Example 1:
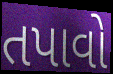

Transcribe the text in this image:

તપાવો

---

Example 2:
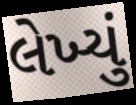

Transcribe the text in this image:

લેખ્યું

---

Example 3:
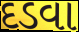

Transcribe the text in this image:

દડવા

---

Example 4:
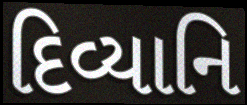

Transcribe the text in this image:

દિવ્યાનિ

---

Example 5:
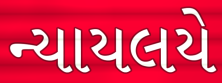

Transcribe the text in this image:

ન્યાયલયે